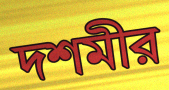
দশমীর